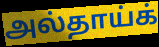
அல்தாய்க்